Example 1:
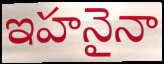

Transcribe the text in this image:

ఇహనైనా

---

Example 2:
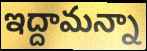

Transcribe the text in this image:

ఇద్దామన్నా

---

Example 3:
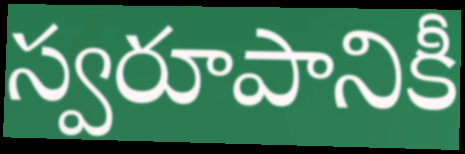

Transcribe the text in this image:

స్వరూపానికీ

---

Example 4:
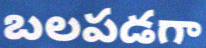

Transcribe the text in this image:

బలపడగా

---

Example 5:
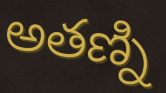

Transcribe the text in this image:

అతణ్ని